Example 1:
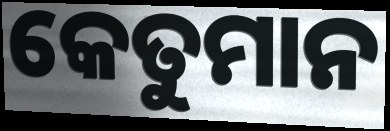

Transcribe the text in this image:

କେତୁମାନ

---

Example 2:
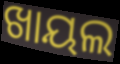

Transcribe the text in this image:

ଖାୟଲ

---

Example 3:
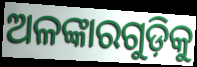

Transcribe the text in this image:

ଅଳଙ୍କାରଗୁଡ଼ିକୁ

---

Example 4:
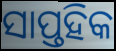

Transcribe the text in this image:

ସାପ୍ତହିକ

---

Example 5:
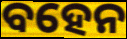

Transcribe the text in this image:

ବହେନ